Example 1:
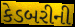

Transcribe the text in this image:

કેડબરીની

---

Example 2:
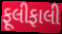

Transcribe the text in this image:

ફૂલીફાલી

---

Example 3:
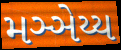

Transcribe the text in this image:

મઞ્ઞેય્ય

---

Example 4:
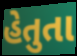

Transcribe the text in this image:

હેતુતા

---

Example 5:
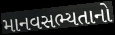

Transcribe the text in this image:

માનવસભ્યતાનો